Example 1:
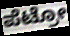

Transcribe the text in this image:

ಪೆಟ್ರೋ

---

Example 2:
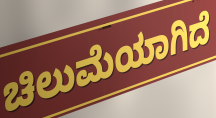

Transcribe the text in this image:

ಚಿಲುಮೆಯಾಗಿದೆ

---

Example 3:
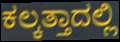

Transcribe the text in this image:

ಕಲ್ಕತ್ತಾದಲ್ಲಿ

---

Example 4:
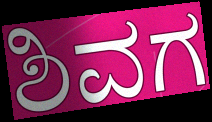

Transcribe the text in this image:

ಶಿವಗ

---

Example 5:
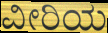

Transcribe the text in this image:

ವೀರಿಯ